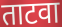
ताटवा